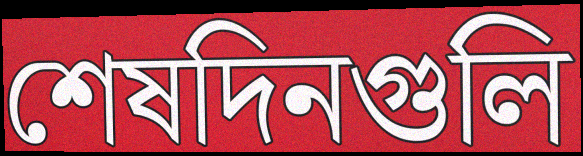
শেষদিনগুলি